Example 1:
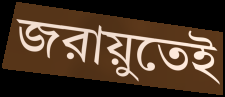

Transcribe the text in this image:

জরায়ুতেই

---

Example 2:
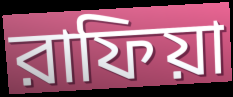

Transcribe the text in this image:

রাফিয়া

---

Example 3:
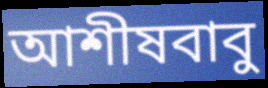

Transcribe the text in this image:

আশীষবাবু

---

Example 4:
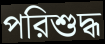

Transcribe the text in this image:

পরিশুদ্ধ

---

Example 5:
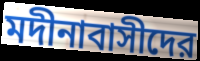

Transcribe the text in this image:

মদীনাবাসীদের